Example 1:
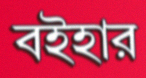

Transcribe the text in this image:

বইহার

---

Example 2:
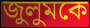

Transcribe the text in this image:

জুলুমকে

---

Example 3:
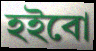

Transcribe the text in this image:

হইবো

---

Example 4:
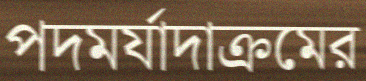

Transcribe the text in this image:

পদমর্যাদাক্রমের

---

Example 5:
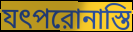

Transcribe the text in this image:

যৎপরোনাস্তি